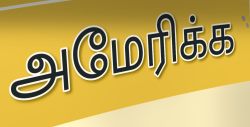
அமேரிக்க